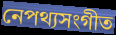
নেপথ্যসংগীত